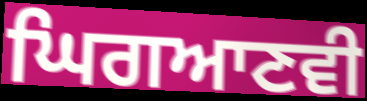
ਘਿਗਆਣਵੀ